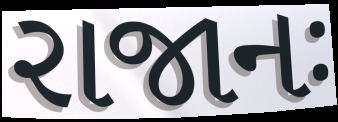
રાજાનઃ